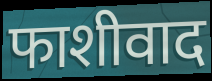
फाशीवाद